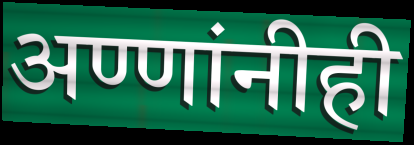
अण्णांनीही